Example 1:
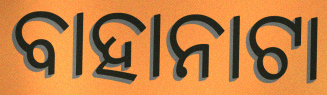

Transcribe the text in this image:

ବାହାନାଟା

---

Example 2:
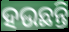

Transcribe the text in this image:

ହଉଛନ୍ତି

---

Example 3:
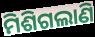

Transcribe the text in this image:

ମିଶିଗଲାଣି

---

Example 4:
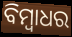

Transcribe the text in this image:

ବିମ୍ବାଧର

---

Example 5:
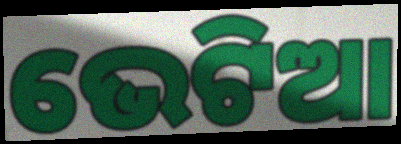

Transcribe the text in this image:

ଭେଟିଆ